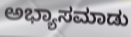
ಅಭ್ಯಾಸಮಾಡು